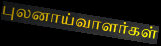
புலனாய்வாளர்கள்